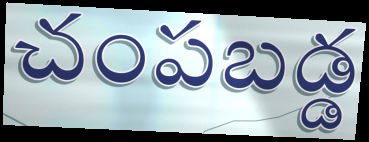
చంపబడ్డ